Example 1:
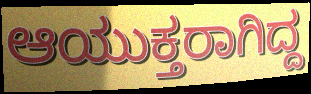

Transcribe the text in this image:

ಆಯುಕ್ತರಾಗಿದ್ದ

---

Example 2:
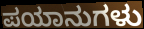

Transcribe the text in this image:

ಪಯಾನುಗಳು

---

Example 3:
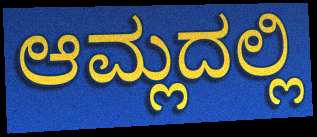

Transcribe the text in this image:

ಆಮ್ಲದಲ್ಲಿ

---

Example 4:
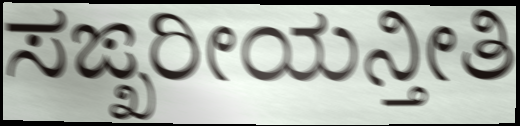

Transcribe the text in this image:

ಸಙ್ಖರೀಯನ್ತೀತಿ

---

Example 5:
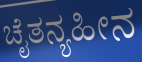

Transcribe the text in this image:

ಚೈತನ್ಯಹೀನ